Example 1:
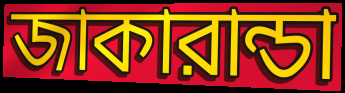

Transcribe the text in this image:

জাকারান্ডা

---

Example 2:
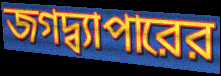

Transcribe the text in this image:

জগদ্ব্যাপারের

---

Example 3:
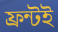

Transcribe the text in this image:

ফ্রন্টই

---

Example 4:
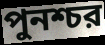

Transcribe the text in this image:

পুনশ্চর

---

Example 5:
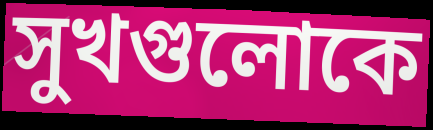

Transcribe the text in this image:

সুখগুলোকে